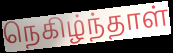
நெகிழ்ந்தாள்